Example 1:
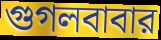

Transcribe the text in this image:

গুগলবাবার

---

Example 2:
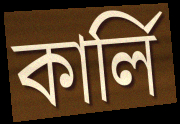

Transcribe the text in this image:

কার্লি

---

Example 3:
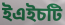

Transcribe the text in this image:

ইএইচটি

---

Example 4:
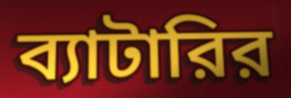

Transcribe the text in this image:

ব্যাটারির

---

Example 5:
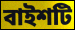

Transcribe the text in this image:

বাইশটি